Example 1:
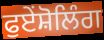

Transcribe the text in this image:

ਫੁਏਂਸ਼ੋਲਿੰਗ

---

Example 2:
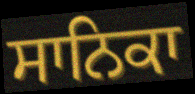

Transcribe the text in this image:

ਸਾਨਿਕਾ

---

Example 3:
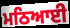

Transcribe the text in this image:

ਮਠਿਆਈ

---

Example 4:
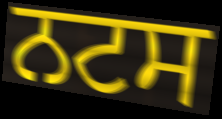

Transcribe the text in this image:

ਨਟਸ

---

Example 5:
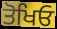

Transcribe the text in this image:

ਤੋਖਿਓ